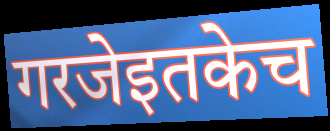
गरजेइतकेच